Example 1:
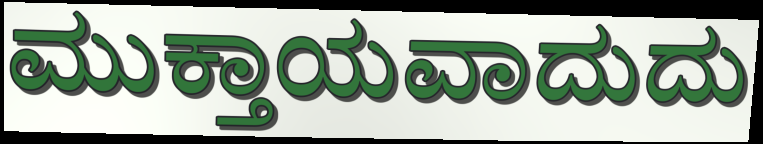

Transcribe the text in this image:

ಮುಕ್ತಾಯವಾದುದು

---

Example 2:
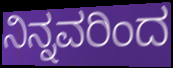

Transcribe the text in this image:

ನಿನ್ನವರಿಂದ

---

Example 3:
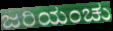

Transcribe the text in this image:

ಜರಿಯಂಚು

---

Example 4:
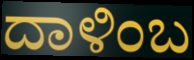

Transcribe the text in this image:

ದಾಳಿಂಬ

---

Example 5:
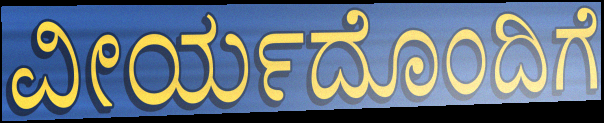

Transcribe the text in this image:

ವೀರ್ಯದೊಂದಿಗೆ